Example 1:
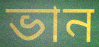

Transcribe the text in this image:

ভান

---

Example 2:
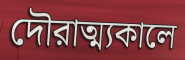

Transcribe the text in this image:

দৌরাত্ম্যকালে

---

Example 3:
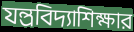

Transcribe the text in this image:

যন্ত্রবিদ্যাশিক্ষার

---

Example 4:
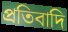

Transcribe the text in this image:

প্রতিবাদি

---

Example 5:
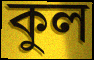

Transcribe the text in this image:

কুল